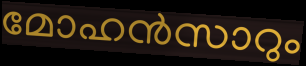
മോഹൻസാറും